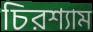
চিরশ্যাম